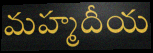
మహ్మదీయ